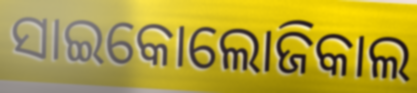
ସାଇକୋଲୋଜିକାଲ